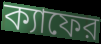
ক্যাফের